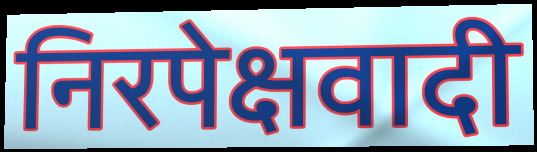
निरपेक्षवादी